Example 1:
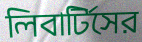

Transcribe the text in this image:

লিবার্টিসের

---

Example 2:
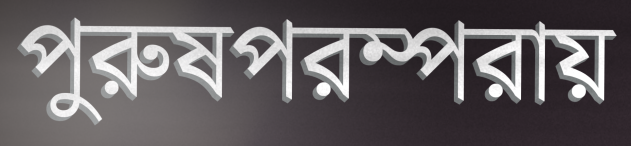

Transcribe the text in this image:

পুরুষপরম্পরায়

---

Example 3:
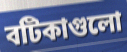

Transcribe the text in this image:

বটিকাগুলো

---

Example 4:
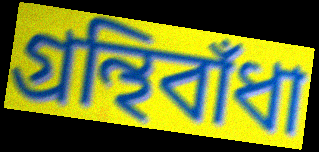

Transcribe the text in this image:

গ্রন্থিবাঁধা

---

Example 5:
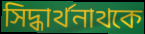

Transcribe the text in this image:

সিদ্ধার্থনাথকে